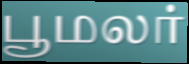
பூமலர்